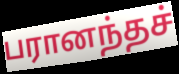
பரானந்தச்